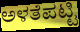
ಅಳತೆಪಟ್ಟಿ